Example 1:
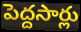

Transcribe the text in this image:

పెద్దసార్లు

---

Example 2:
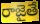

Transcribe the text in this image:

రాజైతే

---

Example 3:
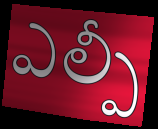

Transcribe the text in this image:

ఎల్పీ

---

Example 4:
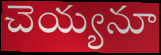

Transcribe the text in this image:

చెయ్యనూ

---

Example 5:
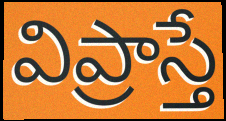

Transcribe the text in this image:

విప్రాస్తే